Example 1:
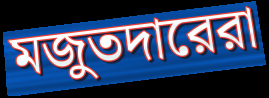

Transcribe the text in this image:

মজুতদারেরা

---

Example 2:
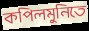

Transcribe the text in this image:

কপিলমুনিতে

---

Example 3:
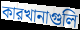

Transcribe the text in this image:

কারখানাগুলি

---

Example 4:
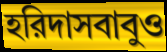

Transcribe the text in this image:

হরিদাসবাবুও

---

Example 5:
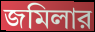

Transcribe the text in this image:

জমিলার